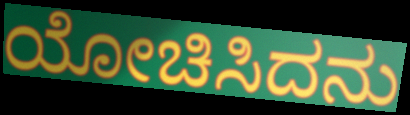
ಯೋಚಿಸಿದನು